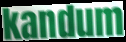
kandum